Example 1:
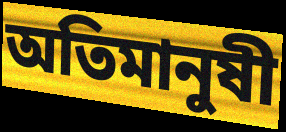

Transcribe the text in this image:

অতিমানুষী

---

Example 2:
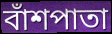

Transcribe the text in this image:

বাঁশপাতা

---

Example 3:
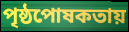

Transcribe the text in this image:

পৃষ্ঠপোষকতায়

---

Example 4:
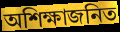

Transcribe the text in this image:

অশিক্ষাজনিত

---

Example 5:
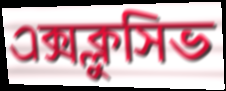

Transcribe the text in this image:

এক্সক্লুসিভ